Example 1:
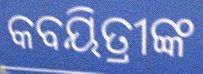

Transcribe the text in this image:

କବୟିତ୍ରୀଙ୍କ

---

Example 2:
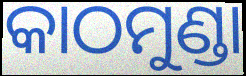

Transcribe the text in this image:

କାଠମୁଣ୍ଡା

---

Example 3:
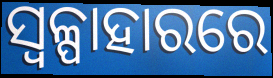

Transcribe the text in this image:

ସ୍ୱଳ୍ପାହାରରେ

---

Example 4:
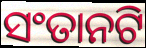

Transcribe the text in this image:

ସଂତାନଟି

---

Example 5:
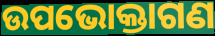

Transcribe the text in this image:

ଉପଭୋକ୍ତାଗଣ